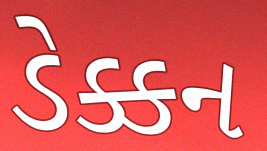
ડેક્કન